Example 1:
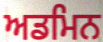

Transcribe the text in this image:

ਅਡਮਿਨ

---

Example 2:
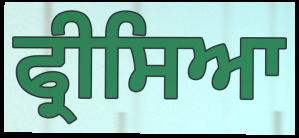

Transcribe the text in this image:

ਫ੍ਰੀਸਿਆ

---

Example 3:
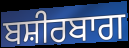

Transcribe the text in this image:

ਬਸ਼ੀਰਬਾਗ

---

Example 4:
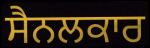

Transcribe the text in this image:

ਸੈਨਲਕਾਰ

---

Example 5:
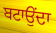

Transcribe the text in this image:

ਬਟਾਉਂਦਾ